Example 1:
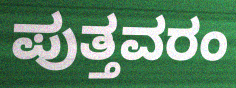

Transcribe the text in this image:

ಪುತ್ತವರಂ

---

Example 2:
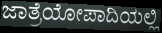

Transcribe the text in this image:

ಜಾತ್ರೆಯೋಪಾದಿಯಲ್ಲಿ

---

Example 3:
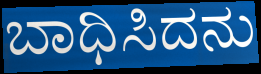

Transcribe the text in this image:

ಬಾಧಿಸಿದನು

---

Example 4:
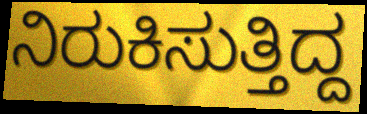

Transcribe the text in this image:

ನಿರುಕಿಸುತ್ತಿದ್ದ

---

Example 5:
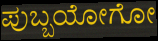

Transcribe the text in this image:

ಪುಬ್ಬಯೋಗೋ